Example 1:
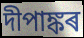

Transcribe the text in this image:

দীপাঙ্কৰ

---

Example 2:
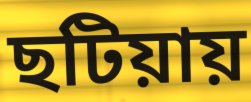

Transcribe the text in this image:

ছটিয়ায়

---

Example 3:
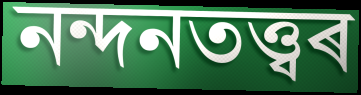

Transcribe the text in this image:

নন্দনতত্ত্বৰ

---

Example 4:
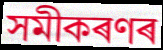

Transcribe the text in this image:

সমীকৰণৰ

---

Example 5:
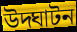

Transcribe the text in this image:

উদ্ঘাটন